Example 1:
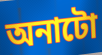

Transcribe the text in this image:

অনাটো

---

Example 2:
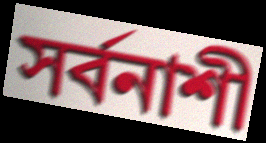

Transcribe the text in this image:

সৰ্বনাশী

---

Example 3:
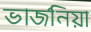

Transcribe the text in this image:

ভাৰ্জনিয়া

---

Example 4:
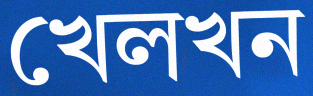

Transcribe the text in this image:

খেলখন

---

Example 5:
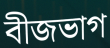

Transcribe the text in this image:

বীজভাগ